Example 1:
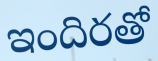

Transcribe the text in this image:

ఇందిరతో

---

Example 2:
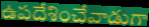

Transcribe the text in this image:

ఉపదేశించేవాడుగా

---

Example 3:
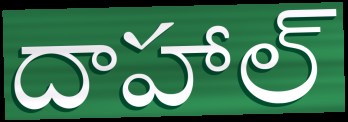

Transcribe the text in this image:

దాహాల్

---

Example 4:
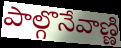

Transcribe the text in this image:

పాల్గొనేవాణ్ణి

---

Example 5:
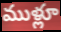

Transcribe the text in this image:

ముళ్లూ